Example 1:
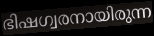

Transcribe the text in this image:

ഭിഷഗ്വരനായിരുന്ന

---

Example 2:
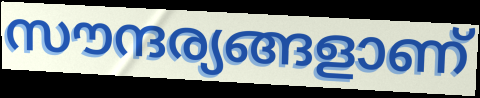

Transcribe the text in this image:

സൗന്ദര്യങ്ങളാണ്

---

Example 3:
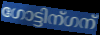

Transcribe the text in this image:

ഗോട്ടിന്ഗന്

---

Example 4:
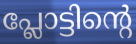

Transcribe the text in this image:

പ്ലോട്ടിന്റെ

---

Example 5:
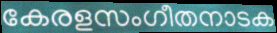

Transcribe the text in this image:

കേരളസംഗീതനാടക